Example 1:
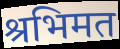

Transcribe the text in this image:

श्रभिमत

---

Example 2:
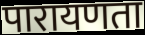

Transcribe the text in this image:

पारायणता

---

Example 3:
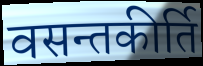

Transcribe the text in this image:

वसन्तकीर्ति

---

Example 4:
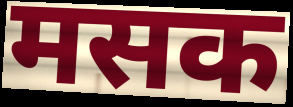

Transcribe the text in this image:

मसक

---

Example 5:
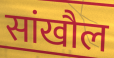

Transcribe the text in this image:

सांखौल